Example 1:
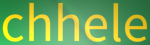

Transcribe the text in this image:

chhele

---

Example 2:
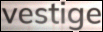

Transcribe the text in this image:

vestige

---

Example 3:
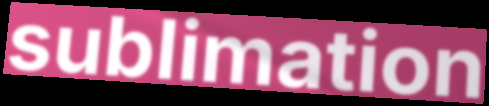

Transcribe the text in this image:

sublimation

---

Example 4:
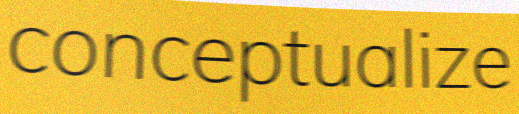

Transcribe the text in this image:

conceptualize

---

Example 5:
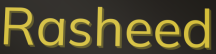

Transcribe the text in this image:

Rasheed